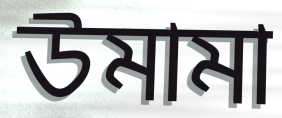
উমামা